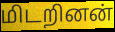
மிடறினன்